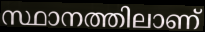
സ്ഥാനത്തിലാണ്